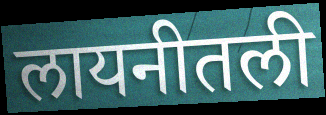
लायनीतली